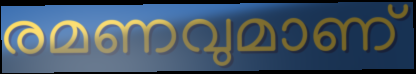
രമണവുമാണ്